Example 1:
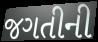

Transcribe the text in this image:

જગતીની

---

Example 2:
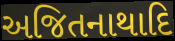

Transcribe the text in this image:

અજિતનાથાદિ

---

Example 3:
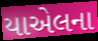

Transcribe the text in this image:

યાએલના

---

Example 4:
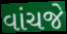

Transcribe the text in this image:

વાંચજે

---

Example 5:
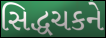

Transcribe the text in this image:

સિદ્ધચકને